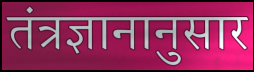
तंत्रज्ञानानुसार